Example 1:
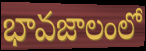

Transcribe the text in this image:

భావజాలంలో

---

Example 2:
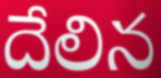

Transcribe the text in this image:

దేలిన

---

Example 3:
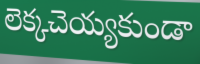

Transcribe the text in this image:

లెక్కచెయ్యకుండా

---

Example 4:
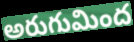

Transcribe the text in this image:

అరుగుమింద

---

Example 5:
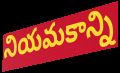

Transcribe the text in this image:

నియమకాన్ని